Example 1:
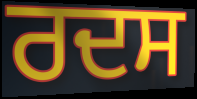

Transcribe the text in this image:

ਰਦਸ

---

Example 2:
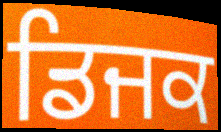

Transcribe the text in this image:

ਡਿਜਕ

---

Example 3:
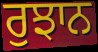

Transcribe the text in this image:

ਰੁਝਾਨ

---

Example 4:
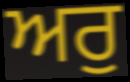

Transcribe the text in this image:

ਅਰੁ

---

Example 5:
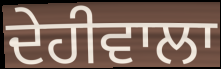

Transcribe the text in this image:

ਦੇਹੀਵਾਲਾ